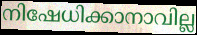
നിഷേധിക്കാനാവില്ല